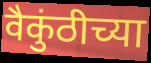
वैकुंठीच्या